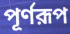
পূর্ণরূপ